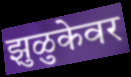
झुळुकेवर